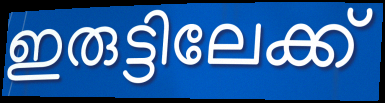
ഇരുട്ടിലേക്ക്